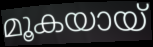
മൂകയായ്